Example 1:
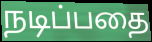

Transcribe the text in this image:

நடிப்பதை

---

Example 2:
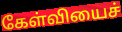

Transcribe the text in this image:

கேள்வியைச்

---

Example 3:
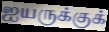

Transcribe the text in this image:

ஐயருக்குக்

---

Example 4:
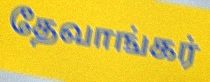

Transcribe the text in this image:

தேவாங்கர்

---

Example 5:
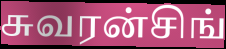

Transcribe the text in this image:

சுவரன்சிங்